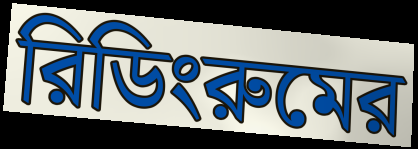
রিডিংরুমের